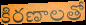
కిరణాలతో